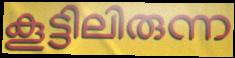
കൂട്ടിലിരുന്ന